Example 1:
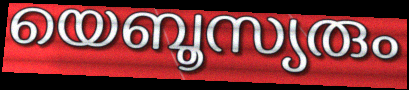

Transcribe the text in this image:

യെബൂസ്യരും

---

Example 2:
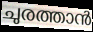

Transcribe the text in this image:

ചുരത്താൻ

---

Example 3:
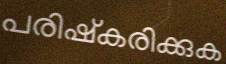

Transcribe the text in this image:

പരിഷ്കരിക്കുക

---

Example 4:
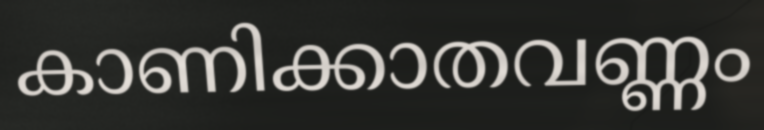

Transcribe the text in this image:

കാണിക്കാതവണ്ണം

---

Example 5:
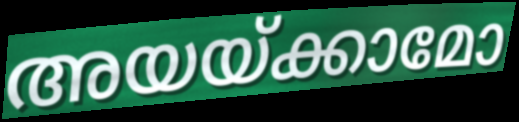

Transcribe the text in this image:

അയയ്ക്കാമോ